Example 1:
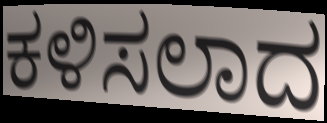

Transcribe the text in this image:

ಕಳಿಸಲಾದ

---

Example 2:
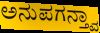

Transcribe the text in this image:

ಅನುಪಗನ್ತ್ವಾ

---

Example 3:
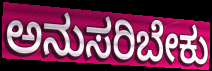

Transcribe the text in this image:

ಅನುಸರಿಬೇಕು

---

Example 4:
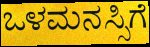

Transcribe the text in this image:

ಒಳಮನಸ್ಸಿಗೆ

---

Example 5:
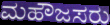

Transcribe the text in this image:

ಮಹೌಜಸರು